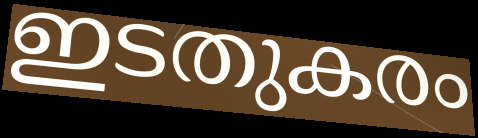
ഇടതുകരം